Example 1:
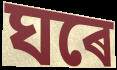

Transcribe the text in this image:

ঘৰে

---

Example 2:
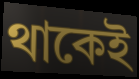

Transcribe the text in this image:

থাকেই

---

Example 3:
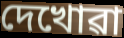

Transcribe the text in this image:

দেখোৱা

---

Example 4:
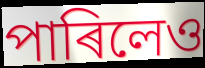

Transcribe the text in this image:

পাৰিলেও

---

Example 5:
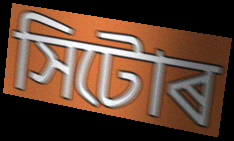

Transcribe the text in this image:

সিটোৰ